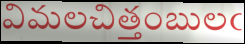
విమలచిత్తంబులఁ